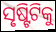
ସୃଷ୍ଟିଟିକୁ